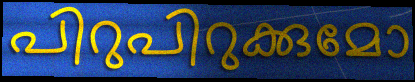
പിറുപിറുക്കുമോ